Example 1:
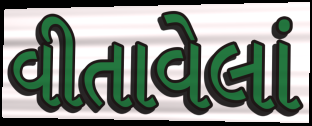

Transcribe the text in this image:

વીતાવેલાં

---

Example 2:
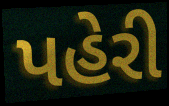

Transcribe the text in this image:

પહેરી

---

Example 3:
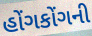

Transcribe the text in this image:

હોંગકોંગની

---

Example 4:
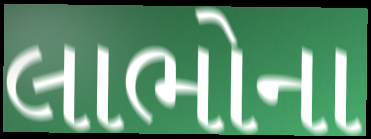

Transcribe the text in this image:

લાભોના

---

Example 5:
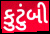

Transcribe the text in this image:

કુટુંબી